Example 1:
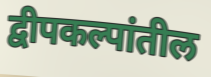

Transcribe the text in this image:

द्वीपकल्पांतील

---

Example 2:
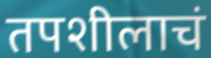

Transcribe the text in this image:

तपशीलाचं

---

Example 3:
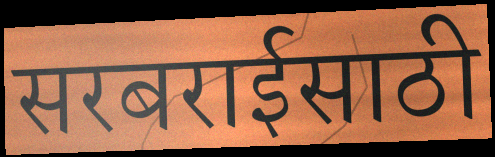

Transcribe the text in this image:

सरबराईसाठी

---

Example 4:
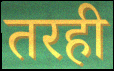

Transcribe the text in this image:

तरही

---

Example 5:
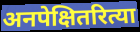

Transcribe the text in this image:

अनपेक्षितरित्या